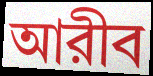
আরীব